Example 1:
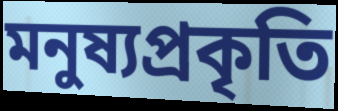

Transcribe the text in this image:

মনুষ্যপ্রকৃতি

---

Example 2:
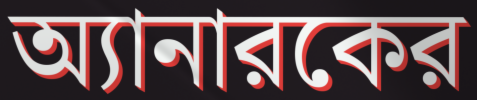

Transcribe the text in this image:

অ্যানারকের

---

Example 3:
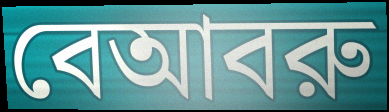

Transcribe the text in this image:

বেআবরু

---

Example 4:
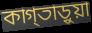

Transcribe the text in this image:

কাগ্‌তাড়ুয়া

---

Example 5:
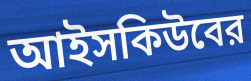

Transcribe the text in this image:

আইসকিউবের